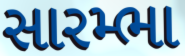
સારમ્ભા